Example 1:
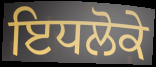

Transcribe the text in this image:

ਇਧਲੋਕੇ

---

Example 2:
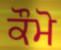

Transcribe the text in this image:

ਕੌਮੋ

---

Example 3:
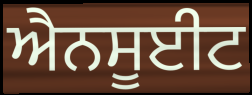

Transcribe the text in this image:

ਐਨਸੂਈਟ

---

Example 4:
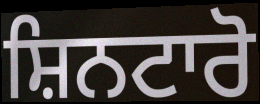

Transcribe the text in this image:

ਸ਼ਿਨਟਾਰੋ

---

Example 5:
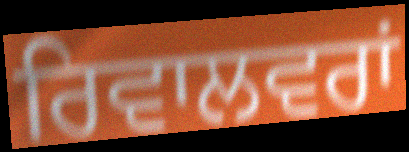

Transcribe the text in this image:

ਰਿਵਾਲਵਰਾਂ